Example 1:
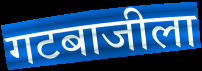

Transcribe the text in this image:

गटबाजीला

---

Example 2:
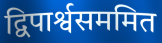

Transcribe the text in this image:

द्विपार्श्वसममित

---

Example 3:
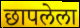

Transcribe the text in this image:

छापलेला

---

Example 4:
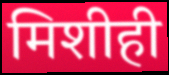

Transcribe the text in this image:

मिशीही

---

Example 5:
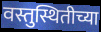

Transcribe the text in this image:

वस्तुस्थितीच्या